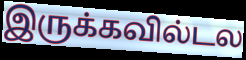
இருக்கவில்டல